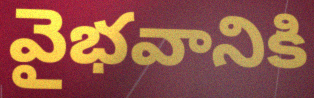
వైభవానికి